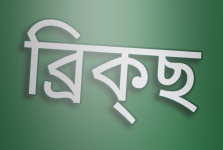
ব্ৰিক্ছ